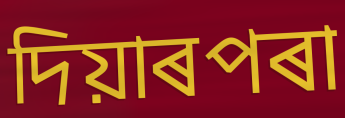
দিয়াৰপৰা